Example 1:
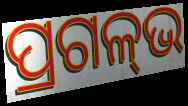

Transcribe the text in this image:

ପ୍ରଗଳ୍‌ଭ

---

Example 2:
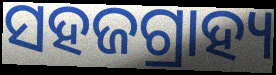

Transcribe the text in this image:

ସହଜଗ୍ରାହ୍ୟ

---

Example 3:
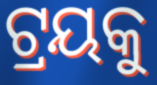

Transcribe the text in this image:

ଟ୍ରୟକୁ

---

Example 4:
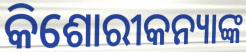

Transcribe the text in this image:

କିଶୋରୀକନ୍ୟାଙ୍କ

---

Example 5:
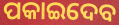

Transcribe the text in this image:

ପକାଇଦେବ